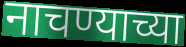
नाचण्याच्या